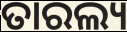
ତାରଲ୍ୟ